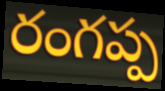
రంగప్ప